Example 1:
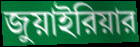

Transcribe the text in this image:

জুয়াইরিয়ার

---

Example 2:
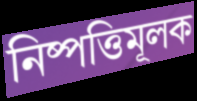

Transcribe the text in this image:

নিষ্পত্তিমূলক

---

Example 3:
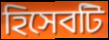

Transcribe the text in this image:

হিসেবটি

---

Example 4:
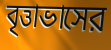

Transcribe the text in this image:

বৃত্তাভাসের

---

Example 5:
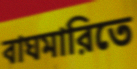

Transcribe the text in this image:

বাঘমারিতে